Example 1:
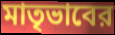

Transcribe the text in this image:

মাতৃভাবের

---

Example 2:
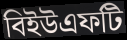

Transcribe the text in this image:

বিইউএফটি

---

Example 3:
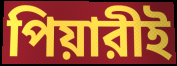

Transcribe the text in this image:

পিয়ারীই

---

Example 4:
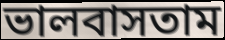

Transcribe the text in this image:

ভালবাসতাম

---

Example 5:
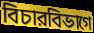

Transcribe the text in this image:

বিচারবিভাগে